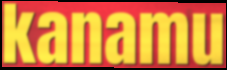
kanamu